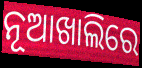
ନୂଆଖାଲିରେ